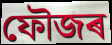
ফৌজৰ